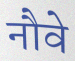
नौवे